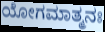
ಯೋಗಮಾತ್ಮನಃ